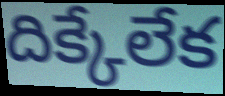
దిక్కేలేక